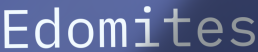
Edomites